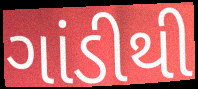
ગાંડીથી